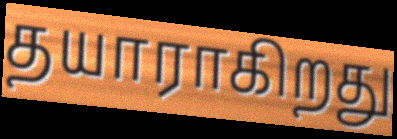
தயாராகிறது